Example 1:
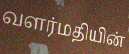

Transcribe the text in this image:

வளர்மதியின்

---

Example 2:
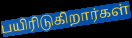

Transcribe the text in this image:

பயிரிடுகிறார்கள்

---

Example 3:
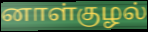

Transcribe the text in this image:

னாள்குழல்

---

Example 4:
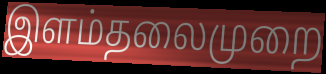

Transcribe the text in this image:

இளம்தலைமுறை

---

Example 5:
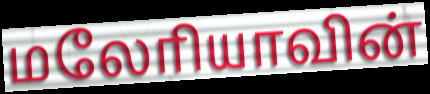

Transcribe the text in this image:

மலேரியாவின்